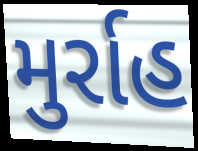
મુર્રાહ